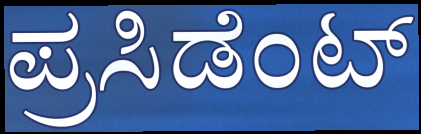
ಪ್ರಸಿಡೆಂಟ್